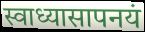
स्वाध्यासापनयं